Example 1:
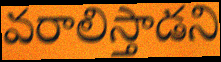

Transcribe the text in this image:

వరాలిస్తాడని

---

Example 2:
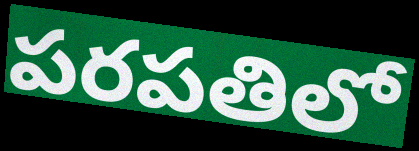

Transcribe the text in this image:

పరపతిలో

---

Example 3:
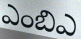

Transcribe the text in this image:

ఎంబిఎ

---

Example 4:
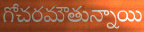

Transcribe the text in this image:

గోచరమౌతున్నాయి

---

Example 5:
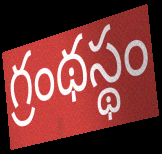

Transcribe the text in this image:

గ్రంథస్థం